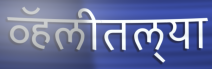
व्हॅलीतल्या